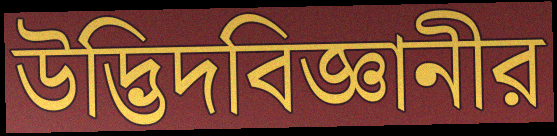
উদ্ভিদবিজ্ঞানীর